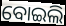
ବୋଇଲି